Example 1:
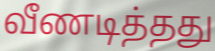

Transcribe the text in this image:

வீணடித்தது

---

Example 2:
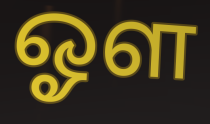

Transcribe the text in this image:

ஓள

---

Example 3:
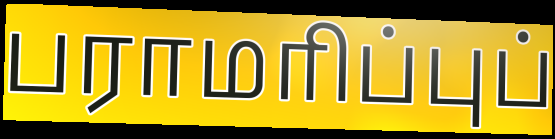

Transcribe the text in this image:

பராமரிப்புப்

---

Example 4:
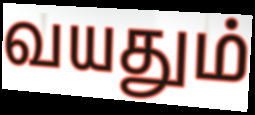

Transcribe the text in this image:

வயதும்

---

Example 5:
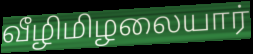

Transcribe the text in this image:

வீழிமிழலையார்